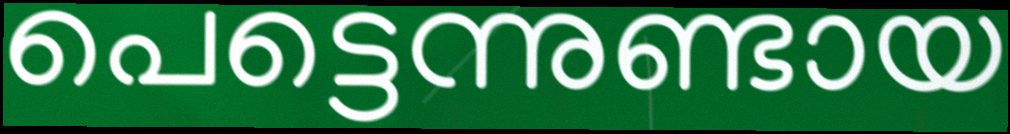
പെട്ടെന്നുണ്ടായ